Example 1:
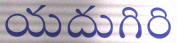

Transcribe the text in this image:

యదుగిరి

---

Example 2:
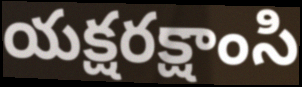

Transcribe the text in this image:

యక్షరక్షాంసి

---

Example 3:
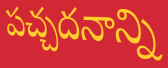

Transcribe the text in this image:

పచ్చదనాన్ని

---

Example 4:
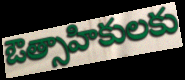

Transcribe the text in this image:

ఔత్సాహికులకు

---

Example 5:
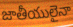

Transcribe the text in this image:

జాతీయులైనా